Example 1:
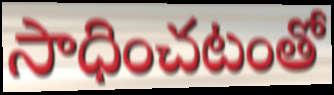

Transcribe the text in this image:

సాధించటంతో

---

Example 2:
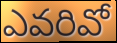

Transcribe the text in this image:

ఎవరివో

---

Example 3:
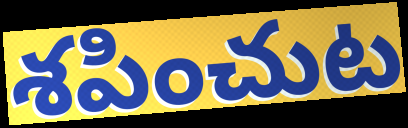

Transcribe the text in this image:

శపించుట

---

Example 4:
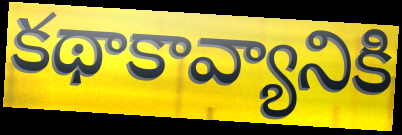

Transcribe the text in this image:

కథాకావ్యానికి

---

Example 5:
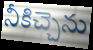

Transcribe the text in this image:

నీకిచ్చెను